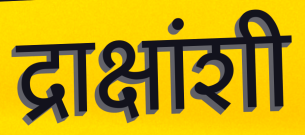
द्राक्षांशी